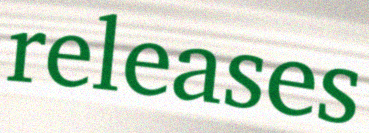
releases